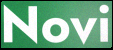
Novi